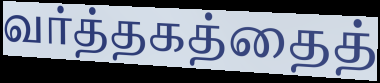
வர்த்தகத்தைத்